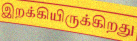
இறக்கியிருக்கிறது